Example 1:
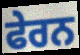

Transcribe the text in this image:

ਫੇਰਨ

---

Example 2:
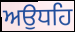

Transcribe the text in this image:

ਅਉਧਹਿ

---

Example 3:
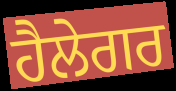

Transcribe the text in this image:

ਹੈਲੇਗਰ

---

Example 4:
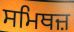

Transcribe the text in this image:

ਸਮਿਥਜ਼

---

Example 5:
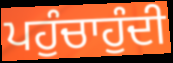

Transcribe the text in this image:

ਪਹੁੰਚਾਹੁੰਦੀ